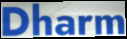
Dharm